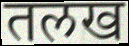
तलख